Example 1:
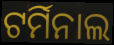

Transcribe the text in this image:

ଟର୍ମିନାଲ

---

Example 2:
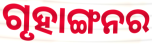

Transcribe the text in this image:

ଗୃହାଙ୍ଗନର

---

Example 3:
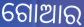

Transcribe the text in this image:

ଗୋଆର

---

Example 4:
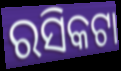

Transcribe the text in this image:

ରସିକଟା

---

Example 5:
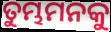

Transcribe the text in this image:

ତୁମ୍ଭମନକୁ